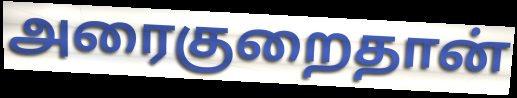
அரைகுறைதான்